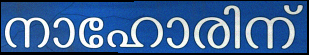
നാഹോരിന്